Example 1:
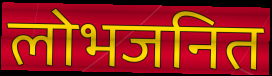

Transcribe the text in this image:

लोभजनित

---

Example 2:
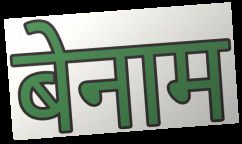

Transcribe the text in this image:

बेनाम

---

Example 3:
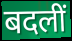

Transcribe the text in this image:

बदलीं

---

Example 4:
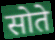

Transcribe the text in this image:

सोते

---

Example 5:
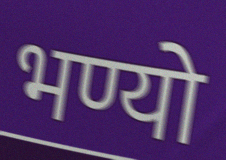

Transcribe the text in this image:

भण्यो